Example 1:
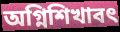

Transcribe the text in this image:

অগ্নিশিখাবৎ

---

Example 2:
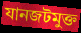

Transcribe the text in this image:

যানজটমুক্ত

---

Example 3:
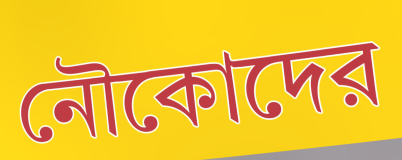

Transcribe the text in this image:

নৌকোদের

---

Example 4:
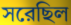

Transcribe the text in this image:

সরেছিল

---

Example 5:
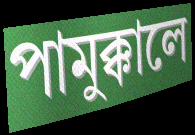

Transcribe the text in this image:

পামুক্কালে